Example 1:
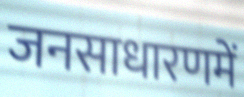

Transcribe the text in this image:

जनसाधारणमें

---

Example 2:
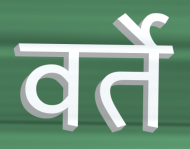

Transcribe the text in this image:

वर्ते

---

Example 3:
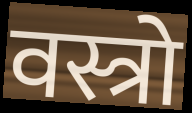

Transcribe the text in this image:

वस्त्रो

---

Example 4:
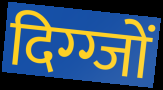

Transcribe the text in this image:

दिग्ग्जों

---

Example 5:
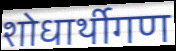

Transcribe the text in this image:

शोधार्थीगण